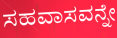
ಸಹವಾಸವನ್ನೇ